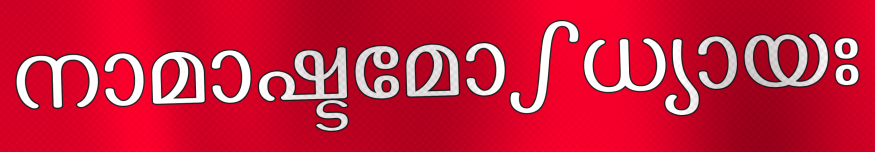
നാമാഷ്ടമോഽധ്യായഃ